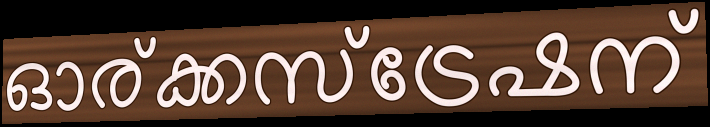
ഓര്ക്കസ്ട്രേഷന്